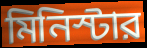
মিনিস্টার